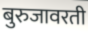
बुरुजावरती